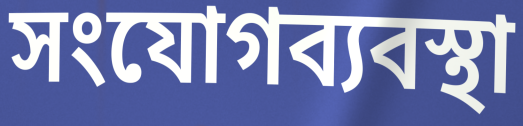
সংযোগব্যবস্থা